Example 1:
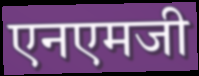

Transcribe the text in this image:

एनएमजी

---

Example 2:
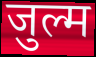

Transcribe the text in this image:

जुल्म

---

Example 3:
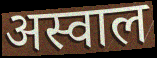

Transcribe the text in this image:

अस्वाल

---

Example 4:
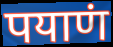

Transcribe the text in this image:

पयाणं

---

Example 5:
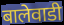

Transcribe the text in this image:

बालेवाडी